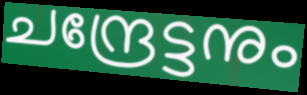
ചന്ദ്രേട്ടനും